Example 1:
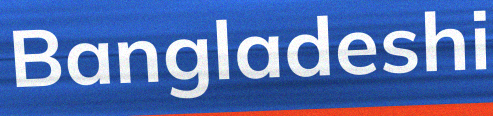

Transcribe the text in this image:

Bangladeshi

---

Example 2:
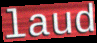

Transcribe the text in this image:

laud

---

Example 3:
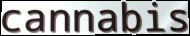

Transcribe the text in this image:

cannabis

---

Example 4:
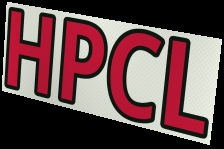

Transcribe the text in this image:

HPCL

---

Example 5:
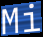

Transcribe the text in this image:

Mi